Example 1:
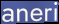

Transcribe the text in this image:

aneri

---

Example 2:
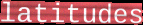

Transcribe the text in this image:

latitudes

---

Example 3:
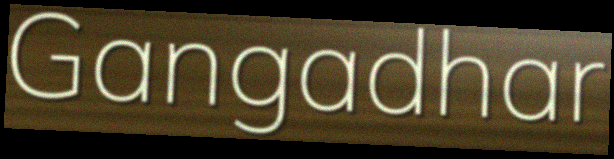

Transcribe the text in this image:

Gangadhar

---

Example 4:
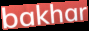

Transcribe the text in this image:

bakhar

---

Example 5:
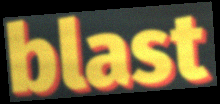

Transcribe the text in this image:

blast